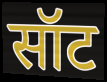
सॉट